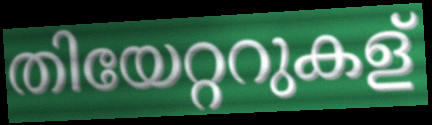
തിയേറ്ററുകള്